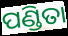
ପଣ୍ଡିତା